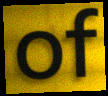
of